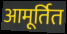
आमूर्तित